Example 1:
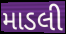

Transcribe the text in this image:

માડલી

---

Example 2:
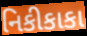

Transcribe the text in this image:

નિકીકાકા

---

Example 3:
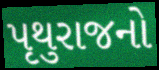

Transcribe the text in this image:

પૃથુરાજનો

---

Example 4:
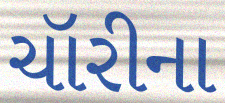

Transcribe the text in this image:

ચૉરીના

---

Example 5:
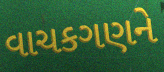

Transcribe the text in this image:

વાચકગણને